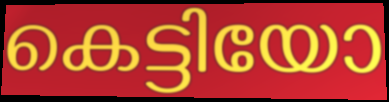
കെട്ടിയോ